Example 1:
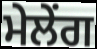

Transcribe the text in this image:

ਮੇਲੇਂਗ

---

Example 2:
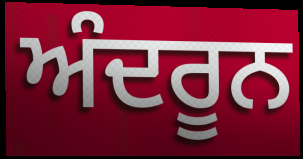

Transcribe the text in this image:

ਅੰਦਰੂਨ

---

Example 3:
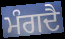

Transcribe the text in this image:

ਮੰਗਦੈ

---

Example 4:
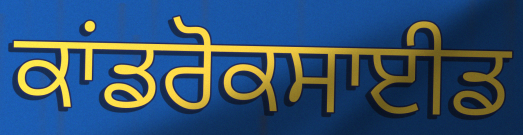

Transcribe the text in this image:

ਕਾਂਡਰੋਕਸਾਈਡ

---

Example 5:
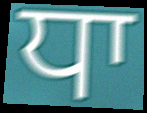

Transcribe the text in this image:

ਧਾ